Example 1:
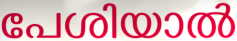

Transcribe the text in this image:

പേശിയാൽ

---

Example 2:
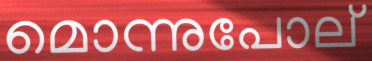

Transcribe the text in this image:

മൊന്നുപോല്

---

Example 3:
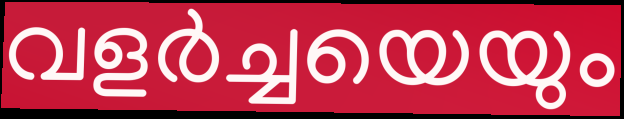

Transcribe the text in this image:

വളർച്ചയെയും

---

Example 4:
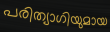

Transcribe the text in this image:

പരിത്യാഗിയുമായ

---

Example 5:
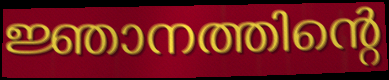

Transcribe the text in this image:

ജ്ഞാനത്തിന്റെ